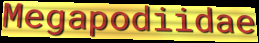
Megapodiidae